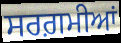
ਸਰਗ਼ਮੀਆਂ